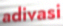
adivasi